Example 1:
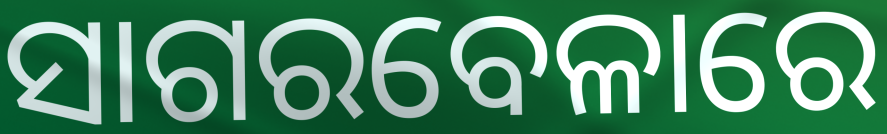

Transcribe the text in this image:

ସାଗରବେଳାରେ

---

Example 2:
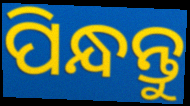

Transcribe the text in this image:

ପିନ୍ଧନ୍ତୁ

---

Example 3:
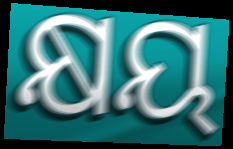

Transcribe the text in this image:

କ୍ଷୟ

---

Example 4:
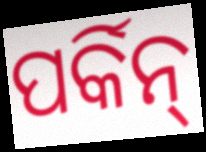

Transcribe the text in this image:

ପର୍କିନ୍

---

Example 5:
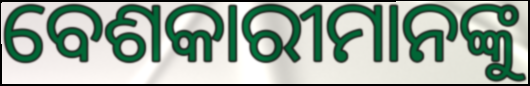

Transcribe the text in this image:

ବେଶକାରୀମାନଙ୍କୁ